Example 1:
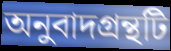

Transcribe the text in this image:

অনুবাদগ্রন্থটি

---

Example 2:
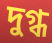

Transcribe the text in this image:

দুগ্ধ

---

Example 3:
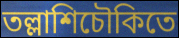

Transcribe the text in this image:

তল্লাশিচৌকিতে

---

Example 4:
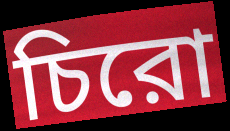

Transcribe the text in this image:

চিরো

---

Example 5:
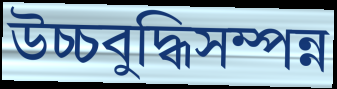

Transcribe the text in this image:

উচ্চবুদ্ধিসম্পন্ন